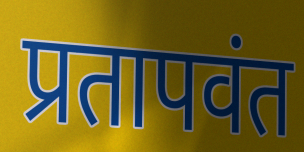
प्रतापवंत